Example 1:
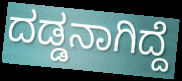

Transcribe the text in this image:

ದಡ್ಡನಾಗಿದ್ದೆ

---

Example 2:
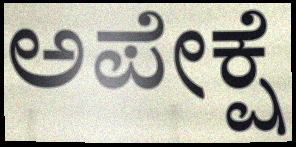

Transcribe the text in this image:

ಅಪೇಕ್ಷೆ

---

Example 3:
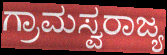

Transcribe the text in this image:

ಗ್ರಾಮಸ್ವರಾಜ್ಯ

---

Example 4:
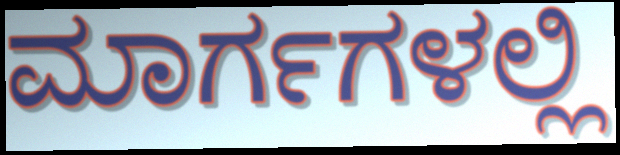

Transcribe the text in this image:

ಮಾರ್ಗಗಳಲ್ಲಿ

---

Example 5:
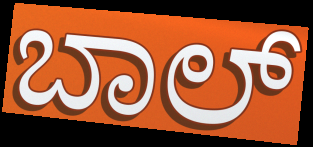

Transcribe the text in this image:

ಬಾಲ್